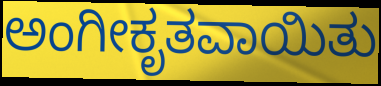
ಅಂಗೀಕೃತವಾಯಿತು